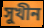
সুখীন